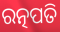
ରତ୍ନପତି